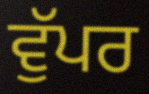
ਵੁੱਪਰ